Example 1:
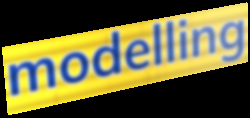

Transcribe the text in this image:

modelling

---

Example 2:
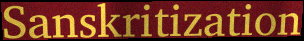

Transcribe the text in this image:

Sanskritization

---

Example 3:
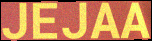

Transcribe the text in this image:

JEJAA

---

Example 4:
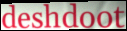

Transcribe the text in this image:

deshdoot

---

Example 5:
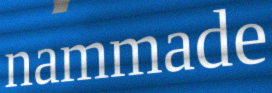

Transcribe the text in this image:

nammade